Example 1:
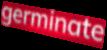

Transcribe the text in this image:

germinate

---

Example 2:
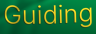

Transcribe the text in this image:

Guiding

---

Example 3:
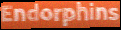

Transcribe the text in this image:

Endorphins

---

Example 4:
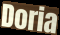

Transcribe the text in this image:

Doria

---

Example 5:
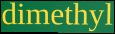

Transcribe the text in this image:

dimethyl